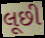
લૂછી